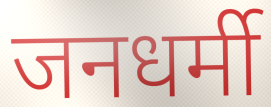
जनधर्मी